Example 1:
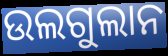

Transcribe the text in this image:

ଉଲଗୁଲାନ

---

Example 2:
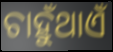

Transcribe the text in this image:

ଚାହୁଁଥାଏଁ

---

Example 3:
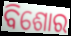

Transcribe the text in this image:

ବିଶୋର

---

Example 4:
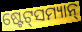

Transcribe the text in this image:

ଷ୍ଟେଟ୍‌ସମ୍ୟାନ୍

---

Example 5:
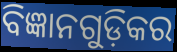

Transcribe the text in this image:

ବିଜ୍ଞାନଗୁଡ଼ିକର